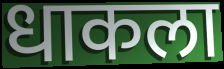
धाकला